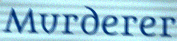
Murderer